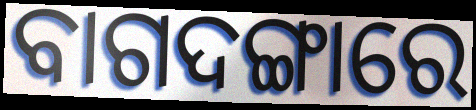
ବାଗଦଙ୍ଗାରେ